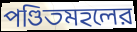
পণ্ডিতমহলের